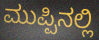
ಮುಪ್ಪಿನಲ್ಲಿ